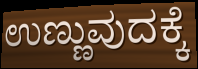
ಉಣ್ಣುವುದಕ್ಕೆ